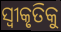
ସ୍ବୀକୃତିକୁ